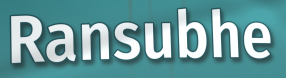
Ransubhe